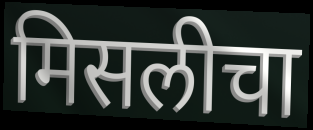
मिसलीचा